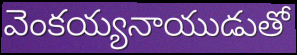
వెంకయ్యనాయుడుతో